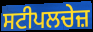
ਸਟੀਪਲਚੇਜ਼